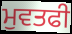
ਮੁਵਤਫੀ